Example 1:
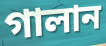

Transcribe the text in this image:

গালান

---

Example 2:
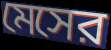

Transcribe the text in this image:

মেসের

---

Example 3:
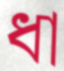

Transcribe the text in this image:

ধা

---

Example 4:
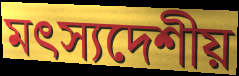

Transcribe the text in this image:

মৎস্যদেশীয়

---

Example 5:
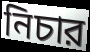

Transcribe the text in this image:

নিচার